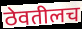
ठेवतीलच